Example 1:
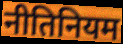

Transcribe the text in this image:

नीतिनियम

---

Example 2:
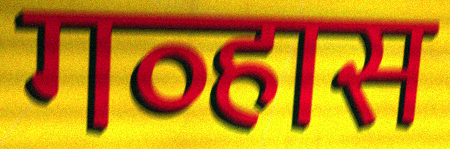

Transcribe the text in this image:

गव्हास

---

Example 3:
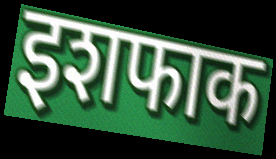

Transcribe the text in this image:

इशफाक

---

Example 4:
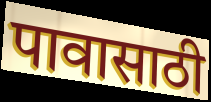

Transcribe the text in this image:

पावासाठी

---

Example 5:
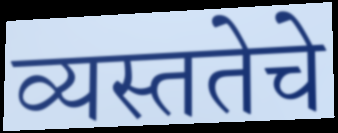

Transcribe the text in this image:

व्यस्ततेचे